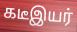
கடீஇயர்